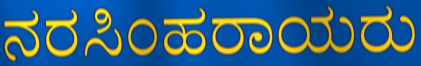
ನರಸಿಂಹರಾಯರು